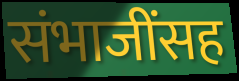
संभाजींसह